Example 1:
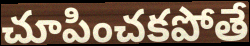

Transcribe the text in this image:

చూపించకపోతే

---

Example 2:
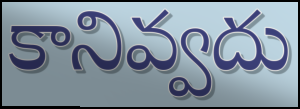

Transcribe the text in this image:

కానివ్వదు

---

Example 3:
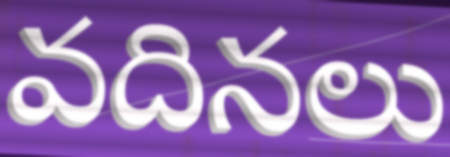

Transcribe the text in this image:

వదినలు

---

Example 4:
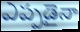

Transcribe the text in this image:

ఎప్పడైనా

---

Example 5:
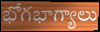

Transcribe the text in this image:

భోగభాగ్యాలు